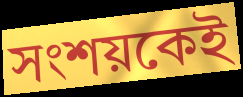
সংশয়কেই